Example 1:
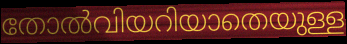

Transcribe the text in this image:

തോൽവിയറിയാതെയുള്ള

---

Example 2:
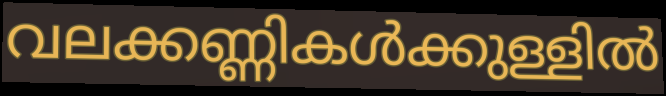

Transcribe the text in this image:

വലക്കണ്ണികൾക്കുള്ളിൽ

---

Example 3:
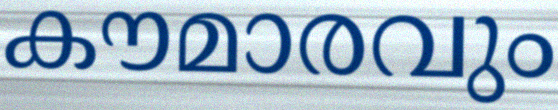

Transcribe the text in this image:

കൗമാരവും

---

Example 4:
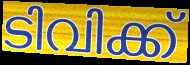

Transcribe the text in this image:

ടിവിക്ക്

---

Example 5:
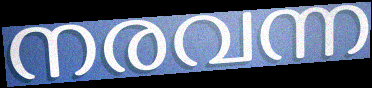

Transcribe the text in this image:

നരവന്ന